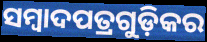
ସମ୍ୱାଦପତ୍ରଗୁଡ଼ିକର